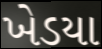
ખેડયા